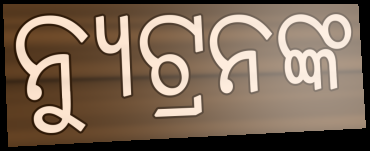
ନ୍ୟୁଟ୍ରନଙ୍କ